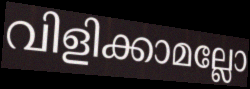
വിളിക്കാമല്ലോ